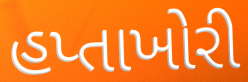
હપ્તાખોરી